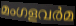
മംഗളവർമ